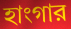
হাংগার